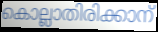
കൊല്ലാതിരിക്കാന്